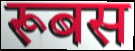
रूबस